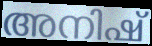
അനിഷ്